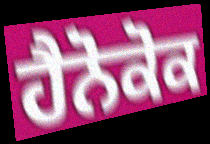
ਹੈਨੋਕੋਕ